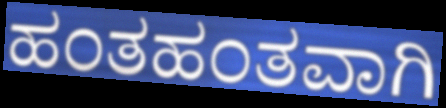
ಹಂತಹಂತವಾಗಿ